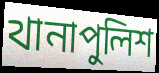
থানাপুলিশ